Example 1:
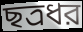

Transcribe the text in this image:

ছত্রধর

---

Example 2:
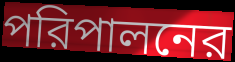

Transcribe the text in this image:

পরিপালনের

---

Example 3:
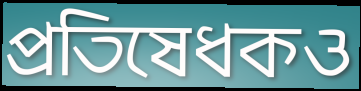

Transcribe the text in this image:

প্রতিষেধকও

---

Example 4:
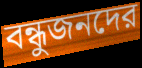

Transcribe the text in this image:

বন্ধুজনদের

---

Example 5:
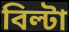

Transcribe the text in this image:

বিল্টা